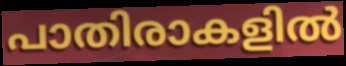
പാതിരാകളിൽ